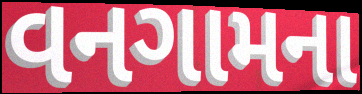
વનગામના